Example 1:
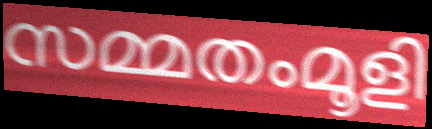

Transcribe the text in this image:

സമ്മതംമൂളി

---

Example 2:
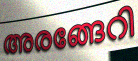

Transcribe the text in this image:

അരങ്ങേറി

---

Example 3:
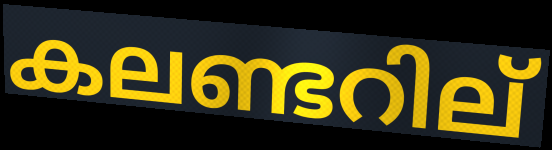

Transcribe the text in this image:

കലണ്ടറില്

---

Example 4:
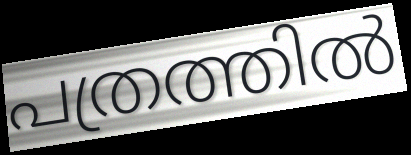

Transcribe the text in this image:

പത്രത്തിൽ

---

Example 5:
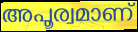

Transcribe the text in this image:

അപൂര്വമാണ്